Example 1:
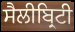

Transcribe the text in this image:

ਸੈਲੀਬ੍ਰਿਟੀ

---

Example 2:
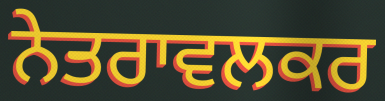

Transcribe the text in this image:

ਨੇਤਰਾਵਲਕਰ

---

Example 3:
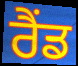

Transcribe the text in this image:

ਰੈਂਡ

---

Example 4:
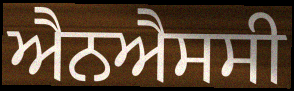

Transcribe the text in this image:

ਐਨਐਸਸੀ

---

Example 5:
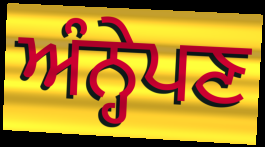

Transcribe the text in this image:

ਅੰਨ੍ਹੇਪਣ